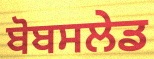
ਬੋਬਸਲੇਡ